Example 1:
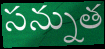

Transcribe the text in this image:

సన్నుత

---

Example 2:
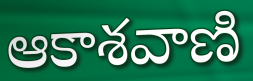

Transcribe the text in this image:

ఆకాశవాణి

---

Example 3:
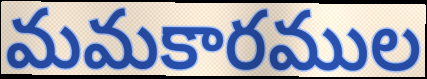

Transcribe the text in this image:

మమకారముల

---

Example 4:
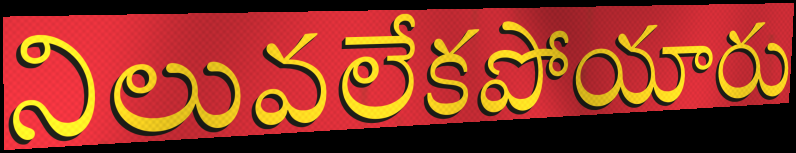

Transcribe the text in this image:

నిలువలేకపోయారు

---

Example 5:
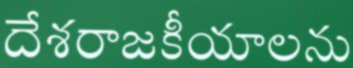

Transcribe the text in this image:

దేశరాజకీయాలను